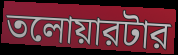
তলোয়ারটার